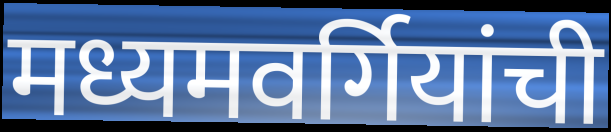
मध्यमवर्गियांची